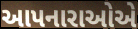
આપનારાઓએ